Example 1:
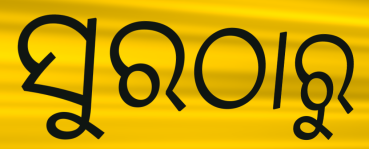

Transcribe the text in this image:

ସୁରଠାରୁ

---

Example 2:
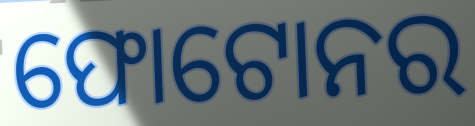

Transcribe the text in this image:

ଫୋଟୋନର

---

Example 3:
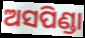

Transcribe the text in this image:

ଅସପିଣ୍ଡା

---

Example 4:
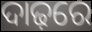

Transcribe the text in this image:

ଦାଢ଼ରେ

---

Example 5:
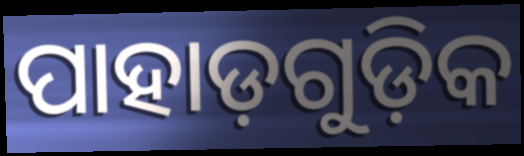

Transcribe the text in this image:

ପାହାଡ଼ଗୁଡ଼ିକ